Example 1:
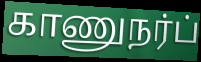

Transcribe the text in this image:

காணுநர்ப்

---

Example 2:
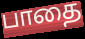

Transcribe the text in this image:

பாதை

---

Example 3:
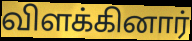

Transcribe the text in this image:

விளக்கினார்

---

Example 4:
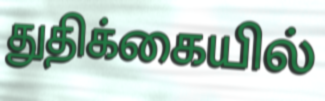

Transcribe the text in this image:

துதிக்கையில்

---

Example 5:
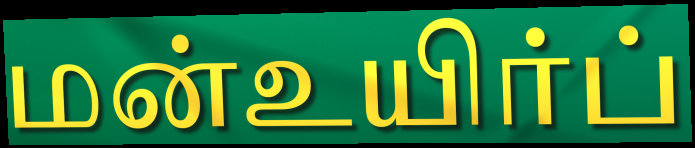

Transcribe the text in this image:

மன்உயிர்ப்